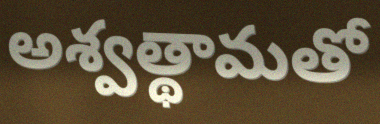
అశ్వత్థామతో